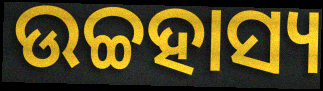
ଉଚ୍ଚହାସ୍ୟ